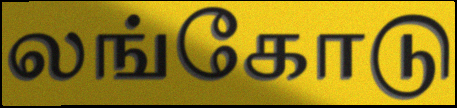
லங்கோடு